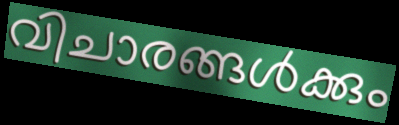
വിചാരങ്ങൾക്കും